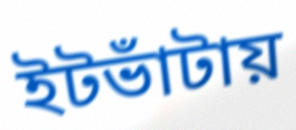
ইটভাঁটায়